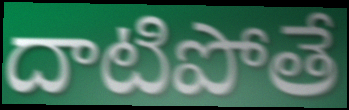
దాటిపోతే